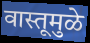
वास्तूमुळे